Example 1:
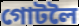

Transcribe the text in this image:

গোটলৈ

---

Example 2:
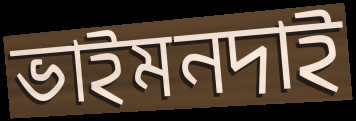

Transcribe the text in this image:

ভাইমনদাই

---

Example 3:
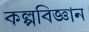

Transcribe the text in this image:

কল্পবিজ্ঞান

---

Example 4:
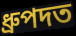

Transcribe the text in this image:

ধ্ৰুপদত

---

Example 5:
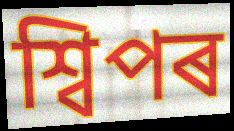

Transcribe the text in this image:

শ্বিপৰ